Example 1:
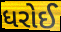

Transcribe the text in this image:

ધરોઈ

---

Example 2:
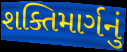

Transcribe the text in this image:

શક્તિમાર્ગનું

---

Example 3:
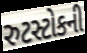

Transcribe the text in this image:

રુટસ્ટોકની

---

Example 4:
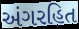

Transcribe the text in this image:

અંગરહિત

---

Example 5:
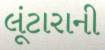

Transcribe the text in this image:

લૂંટારાની